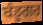
ਬੰਡੂਗਰ